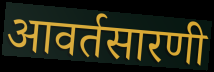
आवर्तसारणी